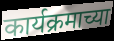
कार्यक्रमाच्या